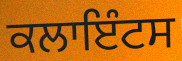
ਕਲਾਇੰਟਸ